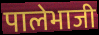
पालेभाजी